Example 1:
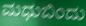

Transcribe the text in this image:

ಮಧುಬಿಂದು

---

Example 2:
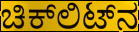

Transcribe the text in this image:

ಚಿಕ್‌ಲಿಟ್‌ನ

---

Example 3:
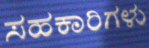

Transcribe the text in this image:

ಸಹಕಾರಿಗಳು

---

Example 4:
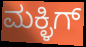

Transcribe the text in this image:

ಮಕ್ಳಿಗ್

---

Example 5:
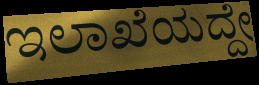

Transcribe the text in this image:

ಇಲಾಖೆಯದ್ದೇ